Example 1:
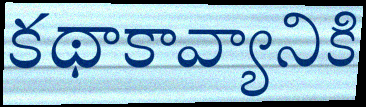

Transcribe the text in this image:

కథాకావ్యానికి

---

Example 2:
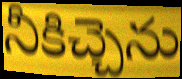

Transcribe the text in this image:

నీకిచ్చెను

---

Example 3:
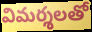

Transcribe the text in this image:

విమర్శలతో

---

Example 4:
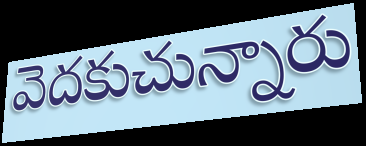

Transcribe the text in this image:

వెదకుచున్నారు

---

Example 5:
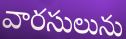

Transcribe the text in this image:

వారసులును